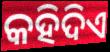
କହିଦିଏ